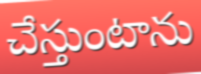
చేస్తుంటాను